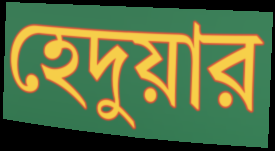
হেদুয়ার